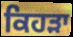
ਕਿਹੜਾ